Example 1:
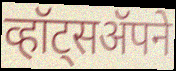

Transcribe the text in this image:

व्हॉट्सॲपने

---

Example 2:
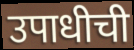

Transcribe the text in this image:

उपाधीची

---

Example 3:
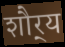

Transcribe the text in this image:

शौर्य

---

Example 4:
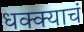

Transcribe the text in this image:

धक्क्याचं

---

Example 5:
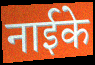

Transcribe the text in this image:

नाईके